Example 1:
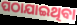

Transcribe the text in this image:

ପଠାଯାଇଥିବା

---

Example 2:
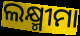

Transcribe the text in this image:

ଲକ୍ଷ୍ମୀମା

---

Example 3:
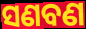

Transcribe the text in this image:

ସଣବଣ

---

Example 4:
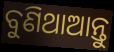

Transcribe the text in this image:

ବୁଣିଥାଆନ୍ତୁ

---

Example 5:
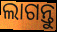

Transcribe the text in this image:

ଲାଗନ୍ତୁ